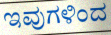
ಇವುಗಳಿಂದ